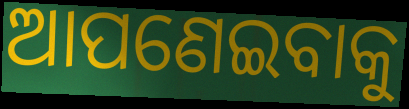
ଆପଣେଇବାକୁ